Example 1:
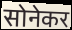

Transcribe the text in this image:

सोनेकर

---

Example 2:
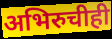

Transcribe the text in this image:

अभिरुचीही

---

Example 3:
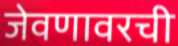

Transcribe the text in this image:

जेवणावरची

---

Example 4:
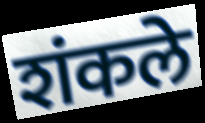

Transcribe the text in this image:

शंकले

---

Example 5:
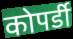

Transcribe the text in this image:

कोपर्डी